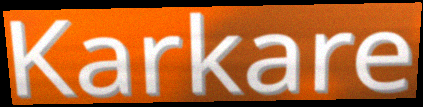
Karkare